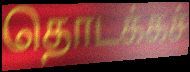
தொடக்கச்